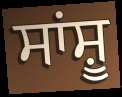
ਸਾਂਸ਼ੂ